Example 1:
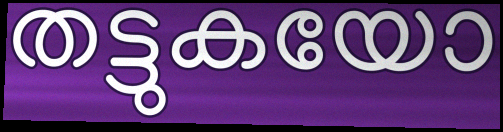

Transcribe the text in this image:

തട്ടുകയോ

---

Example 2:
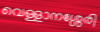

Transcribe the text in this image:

വെള്ളാനശ്ശേരി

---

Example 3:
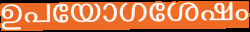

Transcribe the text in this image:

ഉപയോഗശേഷം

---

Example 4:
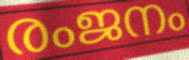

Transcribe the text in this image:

രംജനം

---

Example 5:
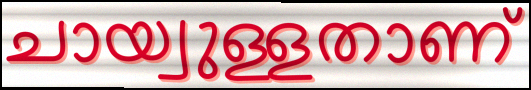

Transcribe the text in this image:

ചായ്വുള്ളതാണ്